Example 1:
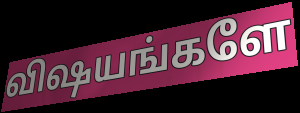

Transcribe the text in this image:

விஷயங்களே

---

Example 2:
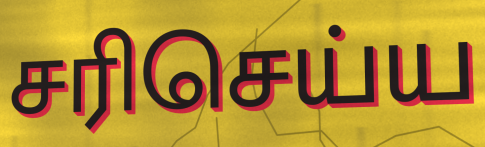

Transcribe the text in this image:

சரிசெய்ய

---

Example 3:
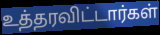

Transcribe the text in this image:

உத்தரவிட்டார்கள்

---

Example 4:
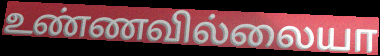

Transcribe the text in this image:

உண்ணவில்லையா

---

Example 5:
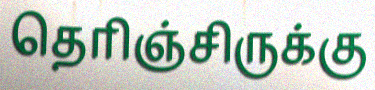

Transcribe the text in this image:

தெரிஞ்சிருக்கு